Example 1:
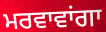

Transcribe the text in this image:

ਮਰਵਾਵਾਂਗਾ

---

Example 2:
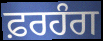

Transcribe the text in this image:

ਫ਼ਰਹੰਗ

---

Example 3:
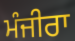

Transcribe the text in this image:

ਮੰਜੀਰਾ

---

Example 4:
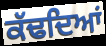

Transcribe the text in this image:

ਕੱਢਦਿਆਂ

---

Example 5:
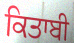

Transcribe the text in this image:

ਕਿਤਾਬੀ